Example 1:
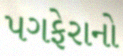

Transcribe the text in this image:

પગફેરાનો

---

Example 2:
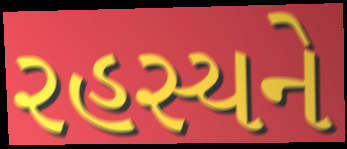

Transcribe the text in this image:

રહસ્યને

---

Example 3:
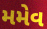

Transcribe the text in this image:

મમેવ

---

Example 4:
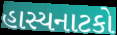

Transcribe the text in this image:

હાસ્યનાટકો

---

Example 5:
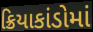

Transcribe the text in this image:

ક્રિયાકાંડોમાં